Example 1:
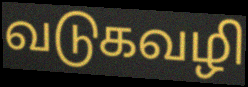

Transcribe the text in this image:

வடுகவழி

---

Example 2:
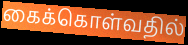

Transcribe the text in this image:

கைக்கொள்வதில்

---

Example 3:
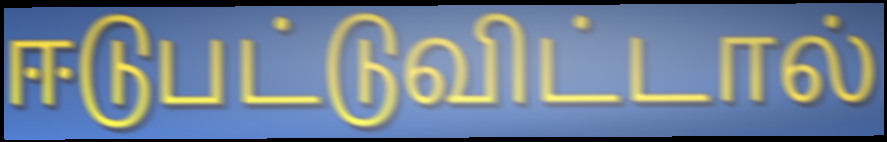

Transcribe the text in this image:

ஈடுபட்டுவிட்டால்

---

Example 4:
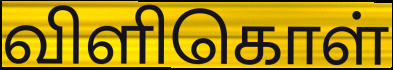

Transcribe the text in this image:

விளிகொள்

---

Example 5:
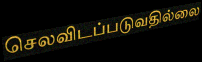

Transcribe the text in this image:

செலவிடப்படுவதில்லை